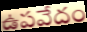
ఉపవేదం